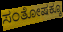
ಸಂತೋಷಕ್ಕೂ